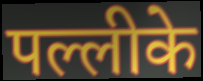
पल्लीके